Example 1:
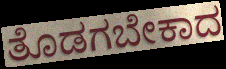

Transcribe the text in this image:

ತೊಡಗಬೇಕಾದ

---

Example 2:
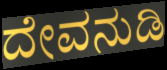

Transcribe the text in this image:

ದೇವನುಡಿ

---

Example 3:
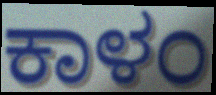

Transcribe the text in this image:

ಕಾಳಂ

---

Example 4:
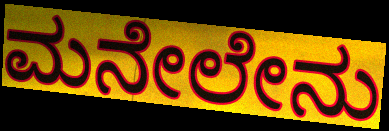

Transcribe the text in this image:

ಮನೇಲೇನು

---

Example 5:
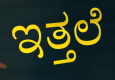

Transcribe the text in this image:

ಇತ್ತಲೆ